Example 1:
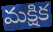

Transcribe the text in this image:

మక్షిక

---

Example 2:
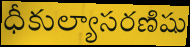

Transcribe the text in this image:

ధీకుల్యాసరణిషు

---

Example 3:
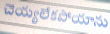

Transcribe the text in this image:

చెయ్యలేకపోయాను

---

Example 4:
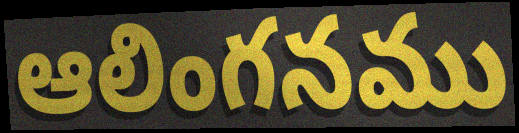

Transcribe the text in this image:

ఆలింగనము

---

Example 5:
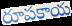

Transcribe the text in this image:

రూపకాయ